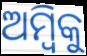
ଅମ୍ବିକୁ